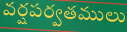
వర్షపర్వతములు